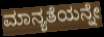
ಮಾನ್ಯತೆಯನ್ನೇ